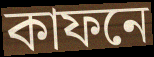
কাফনে